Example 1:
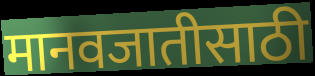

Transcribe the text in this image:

मानवजातीसाठी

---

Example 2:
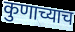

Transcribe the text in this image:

कुणाच्याच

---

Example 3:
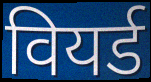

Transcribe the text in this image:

वियर्ड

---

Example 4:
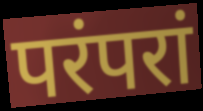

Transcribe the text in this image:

परंपरां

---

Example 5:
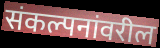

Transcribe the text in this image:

संकल्पनांवरील